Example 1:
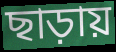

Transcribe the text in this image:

ছাড়ায়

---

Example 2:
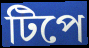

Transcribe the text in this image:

টিপে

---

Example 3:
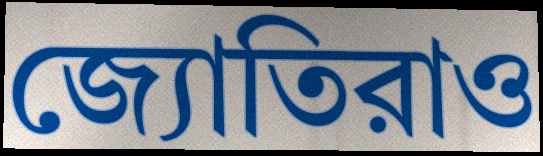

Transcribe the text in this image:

জ্যোতিরাও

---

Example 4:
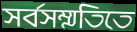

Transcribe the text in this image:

সর্বসম্মতিতে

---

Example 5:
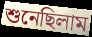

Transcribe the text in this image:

শুনেছিলাম